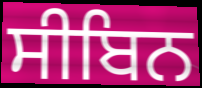
ਸੀਬਿਨ